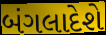
બંગલાદેશે